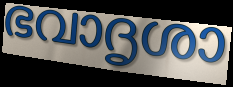
ഭവാദൃശാ